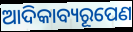
ଆଦିକାବ୍ୟରୂପେଣ